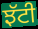
ਝੱਟੀ